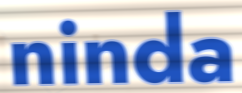
ninda